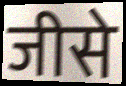
जीसे